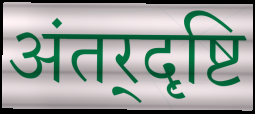
अंतर्दृष्टि